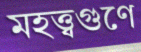
মহত্ত্বগুণে